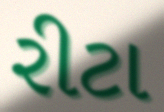
રીટા